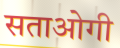
सताओगी